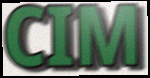
CIM